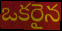
ఒకరైన